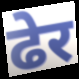
ढेर